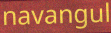
navangul